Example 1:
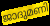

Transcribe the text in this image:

ജാദുമണി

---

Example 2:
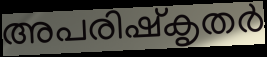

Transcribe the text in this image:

അപരിഷ്കൃതർ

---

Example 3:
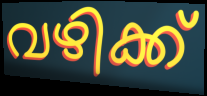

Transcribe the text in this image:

വഴിക്ക്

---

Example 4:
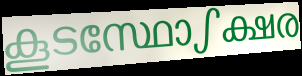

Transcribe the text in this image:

കൂടസ്ഥോഽക്ഷര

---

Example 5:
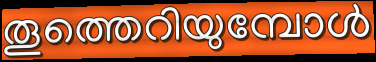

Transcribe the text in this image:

തൂത്തെറിയുമ്പോൾ